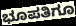
ಭೂಪತಿಗೂ